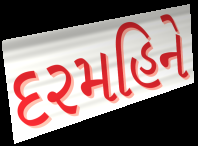
દરમહિને